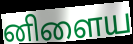
னிளைய